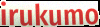
irukumo